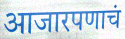
आजारपणाचं